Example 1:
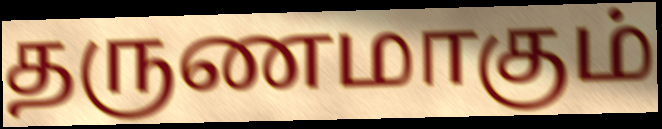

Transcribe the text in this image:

தருணமாகும்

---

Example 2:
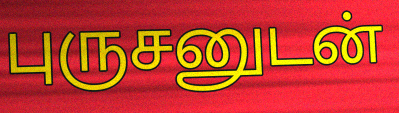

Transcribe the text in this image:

புருசனுடன்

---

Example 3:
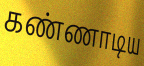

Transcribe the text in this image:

கண்ணாடிய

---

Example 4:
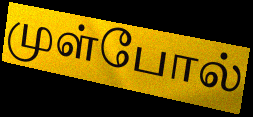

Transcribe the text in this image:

முள்போல்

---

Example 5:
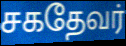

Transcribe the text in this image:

சகதேவர்